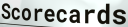
Scorecards